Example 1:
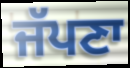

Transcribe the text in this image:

ਜੱਪਣਾ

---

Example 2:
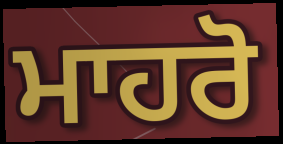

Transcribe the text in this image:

ਮਾਹਰੋ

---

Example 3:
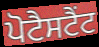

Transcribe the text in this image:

ਪੋਟੈਸਟੈਂਟ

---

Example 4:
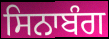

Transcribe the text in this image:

ਸਿਨਾਬੰਗ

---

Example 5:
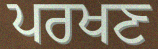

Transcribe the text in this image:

ਪਰਖਣ